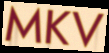
MKV